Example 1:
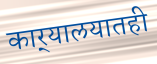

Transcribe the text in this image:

कार्यालयातही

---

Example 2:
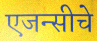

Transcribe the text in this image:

एजन्सीचे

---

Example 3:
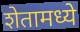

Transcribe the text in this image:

शेतामध्ये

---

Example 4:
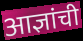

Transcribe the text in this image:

आज्ञांची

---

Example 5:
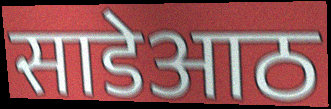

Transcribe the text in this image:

साडेआठ